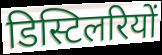
डिस्टिलरियों